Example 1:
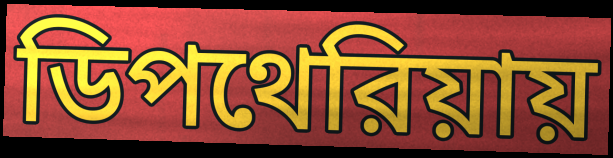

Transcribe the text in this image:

ডিপথেরিয়ায়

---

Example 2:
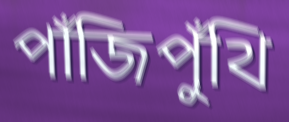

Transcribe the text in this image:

পাঁজিপুঁথি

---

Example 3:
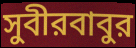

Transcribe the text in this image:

সুবীরবাবুর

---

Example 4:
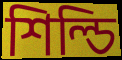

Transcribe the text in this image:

শিল্ডি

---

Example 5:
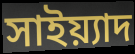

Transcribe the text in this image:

সাইয়্যাদ